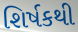
શિર્ષકથી